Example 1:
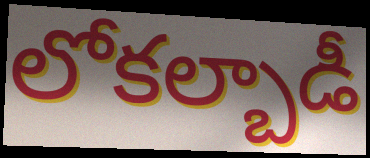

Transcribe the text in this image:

లోకల్బాడీ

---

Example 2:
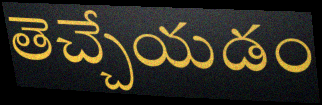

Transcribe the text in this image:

తెచ్చేయడం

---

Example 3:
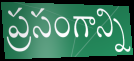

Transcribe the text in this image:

ప్రసంగాన్ని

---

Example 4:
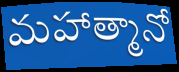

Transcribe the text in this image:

మహాత్మానో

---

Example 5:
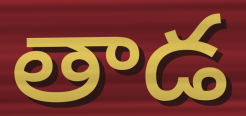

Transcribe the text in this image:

తాడ